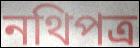
নথিপত্ৰ